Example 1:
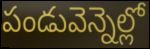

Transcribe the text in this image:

పండువెన్నెల్లో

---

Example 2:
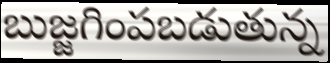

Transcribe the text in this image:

బుజ్జగింపబడుతున్న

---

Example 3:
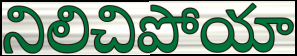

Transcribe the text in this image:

నిలిచిపోయా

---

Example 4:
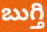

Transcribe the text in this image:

బుగ్తి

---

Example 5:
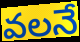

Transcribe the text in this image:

వలనే